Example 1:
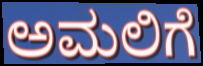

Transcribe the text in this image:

ಅಮಲಿಗೆ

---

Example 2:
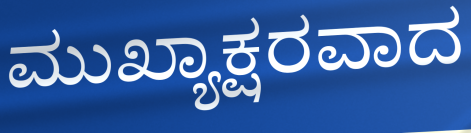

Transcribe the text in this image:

ಮುಖ್ಯಾಕ್ಷರವಾದ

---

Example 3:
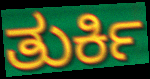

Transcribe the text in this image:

ತುರ್ಕಿ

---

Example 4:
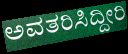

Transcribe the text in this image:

ಅವತರಿಸಿದ್ದೀರಿ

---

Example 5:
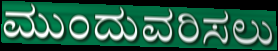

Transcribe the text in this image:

ಮುಂದುವರಿಸಲು